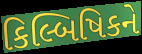
કિલ્બિષિકને